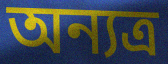
অন্যত্র